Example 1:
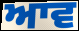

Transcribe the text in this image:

ਆਵ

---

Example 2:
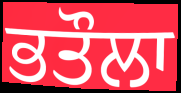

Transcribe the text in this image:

ਭਤੌਲਾ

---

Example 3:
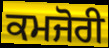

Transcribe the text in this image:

ਕਮਜੋਰੀ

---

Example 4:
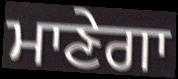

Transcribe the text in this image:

ਮਾਣੇਗਾ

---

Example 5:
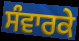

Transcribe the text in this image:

ਸੰਵਾਰਕੇ